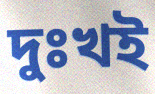
দুঃখই